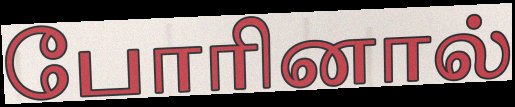
போரினால்